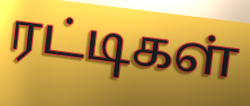
ரட்டிகள்